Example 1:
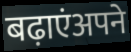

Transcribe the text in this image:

बढ़ाएंअपने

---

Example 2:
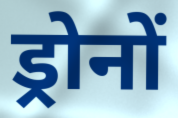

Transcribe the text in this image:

ड्रोनों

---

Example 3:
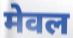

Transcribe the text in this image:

मेवल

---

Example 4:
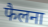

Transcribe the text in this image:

फैलना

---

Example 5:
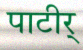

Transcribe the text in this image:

पाटीर्